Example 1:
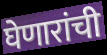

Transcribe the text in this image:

घेणारांची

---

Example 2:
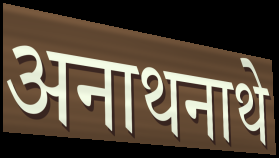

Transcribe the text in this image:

अनाथनाथे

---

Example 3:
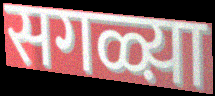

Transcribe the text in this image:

सगळ्य़ा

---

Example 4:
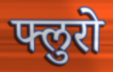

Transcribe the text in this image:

फ्लुरो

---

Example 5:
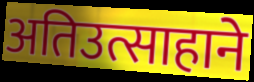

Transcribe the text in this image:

अतिउत्साहाने